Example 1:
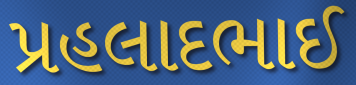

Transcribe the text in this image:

પ્રહલાદભાઈ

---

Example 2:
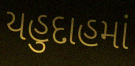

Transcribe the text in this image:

યહુદાહમાં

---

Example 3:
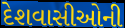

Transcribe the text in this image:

દેશવાસીઓની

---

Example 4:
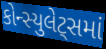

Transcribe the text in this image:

કોન્સ્યુલેટ્સમાં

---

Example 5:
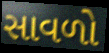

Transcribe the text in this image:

સાવળો